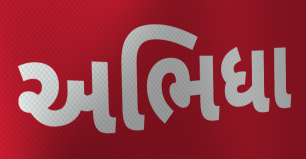
અભિધા